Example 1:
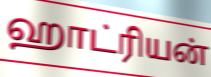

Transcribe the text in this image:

ஹாட்ரியன்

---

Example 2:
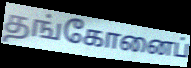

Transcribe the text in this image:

தங்கோனைப்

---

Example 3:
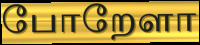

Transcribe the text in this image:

போறேளா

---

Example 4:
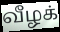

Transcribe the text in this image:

வீழக்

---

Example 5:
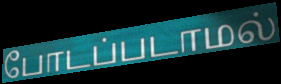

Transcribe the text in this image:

போடப்படாமல்